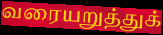
வரையறுத்துக்